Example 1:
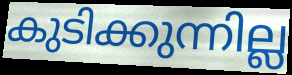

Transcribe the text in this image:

കുടിക്കുന്നില്ല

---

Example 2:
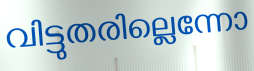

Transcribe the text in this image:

വിട്ടുതരില്ലെന്നോ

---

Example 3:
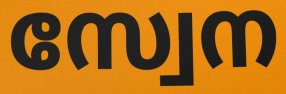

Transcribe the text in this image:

സ്വേന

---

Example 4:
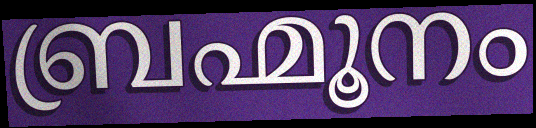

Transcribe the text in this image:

ബ്രഹ്മൂനം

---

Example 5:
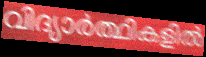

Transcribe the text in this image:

വിദ്യാർത്ഥികളിൽ